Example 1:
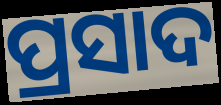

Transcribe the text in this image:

ପ୍ରସାଦ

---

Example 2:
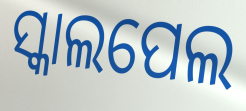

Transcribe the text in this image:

ସ୍କାଲପେଲ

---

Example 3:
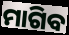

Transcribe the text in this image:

ମାଗିବ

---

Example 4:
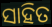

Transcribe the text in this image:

ସାହିତ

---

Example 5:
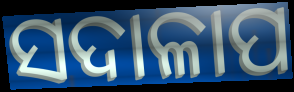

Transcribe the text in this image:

ସଦାଳାପ